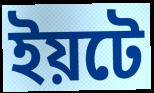
ইয়টে